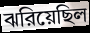
ঝরিয়েছিল